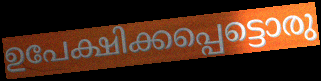
ഉപേക്ഷിക്കപ്പെട്ടൊരു